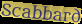
Scabbard